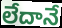
లేదానే